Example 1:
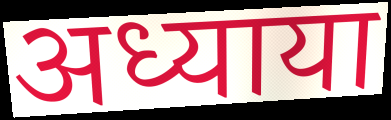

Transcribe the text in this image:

अध्याया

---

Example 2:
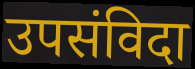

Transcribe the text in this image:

उपसंविदा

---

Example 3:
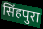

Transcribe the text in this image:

सिंहपुरा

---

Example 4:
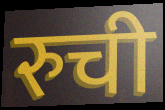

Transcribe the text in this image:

रुची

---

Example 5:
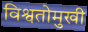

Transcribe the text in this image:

विश्वतोमुखी